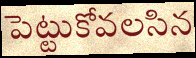
పెట్టుకోవలసిన